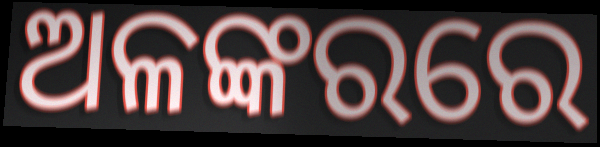
ଅଳଙ୍କରରେ